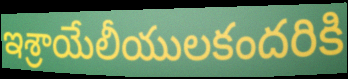
ఇశ్రాయేలీయులకందరికి